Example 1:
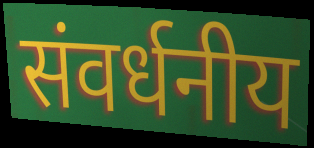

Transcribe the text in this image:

संवर्धनीय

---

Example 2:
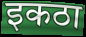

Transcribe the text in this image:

इकठा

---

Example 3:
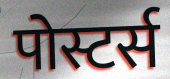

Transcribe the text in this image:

पोस्टर्स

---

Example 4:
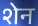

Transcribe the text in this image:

शेन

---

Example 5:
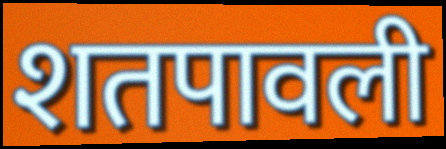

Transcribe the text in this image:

शतपावली